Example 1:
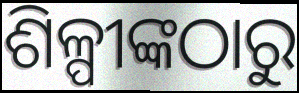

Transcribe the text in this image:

ଶିଳ୍ପୀଙ୍କଠାରୁ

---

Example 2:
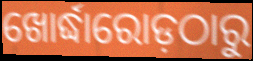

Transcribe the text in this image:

ଖୋର୍ଦ୍ଧାରୋଡ଼ଠାରୁ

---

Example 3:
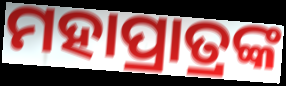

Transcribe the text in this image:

ମହାପ୍ରାତ୍ରଙ୍କ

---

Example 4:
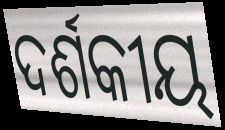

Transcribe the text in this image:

ଦର୍ଶକୀୟ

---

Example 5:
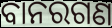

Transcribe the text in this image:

ବାନରଗଣ